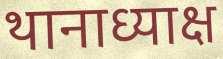
थानाध्याक्ष